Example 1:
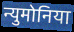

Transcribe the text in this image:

न्युमोनिया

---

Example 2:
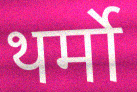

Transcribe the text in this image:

थर्मो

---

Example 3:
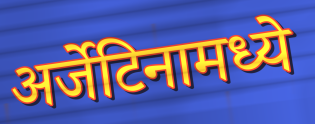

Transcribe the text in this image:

अर्जेटिनामध्ये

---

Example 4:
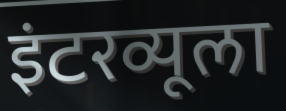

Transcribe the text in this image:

इंटरव्यूला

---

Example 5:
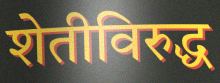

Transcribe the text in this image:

शेतीविरुद्ध